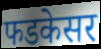
फडकेसर